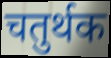
चतुर्थक